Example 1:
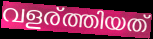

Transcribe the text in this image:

വളര്ത്തിയത്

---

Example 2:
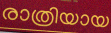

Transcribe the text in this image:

രാത്രിയായ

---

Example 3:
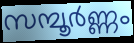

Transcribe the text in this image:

സമ്പൂർണ്ണം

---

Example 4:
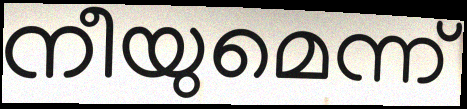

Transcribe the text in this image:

നീയുമെന്ന്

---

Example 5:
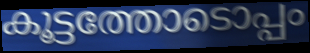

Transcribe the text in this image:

കൂട്ടത്തോടൊപ്പം